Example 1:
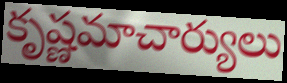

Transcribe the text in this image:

కృష్ణమాచార్యులు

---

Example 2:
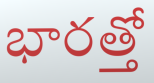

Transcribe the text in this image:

భారత్తో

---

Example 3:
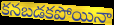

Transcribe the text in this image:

కనబడకపోయినా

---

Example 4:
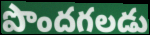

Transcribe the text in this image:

పొందగలడు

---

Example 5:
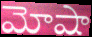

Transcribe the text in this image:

మోషా